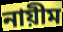
নায়ীম